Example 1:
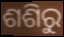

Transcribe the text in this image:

ଶଶିରୁ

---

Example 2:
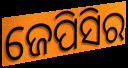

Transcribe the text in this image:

ଜେପିସିର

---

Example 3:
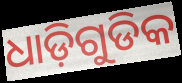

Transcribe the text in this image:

ଧାଡ଼ିଗୁଡିକ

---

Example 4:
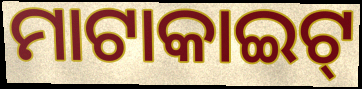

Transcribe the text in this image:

ମାଟାକାଇଟ୍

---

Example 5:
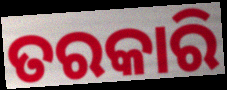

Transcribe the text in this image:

ତରକାରି